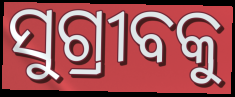
ସୁଗ୍ରୀବକୁ